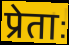
प्रेताः